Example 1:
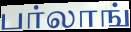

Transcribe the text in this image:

பர்லாங்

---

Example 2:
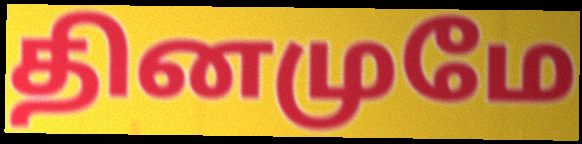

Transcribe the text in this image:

தினமுமே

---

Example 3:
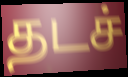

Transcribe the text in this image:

தடச்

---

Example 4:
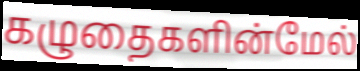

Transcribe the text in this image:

கழுதைகளின்மேல்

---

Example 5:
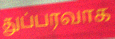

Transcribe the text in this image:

துப்பரவாக